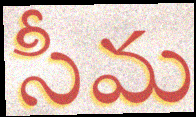
సీమ